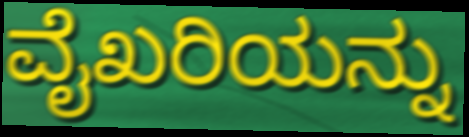
ವೈಖರಿಯನ್ನು